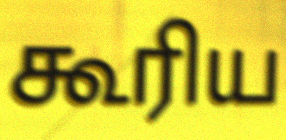
கூரிய